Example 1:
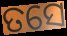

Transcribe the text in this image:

ତସେ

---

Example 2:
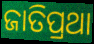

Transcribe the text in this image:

ଜାତିପ୍ରଥା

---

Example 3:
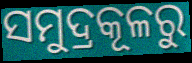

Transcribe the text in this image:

ସମୁଦ୍ରକୂଳରୁ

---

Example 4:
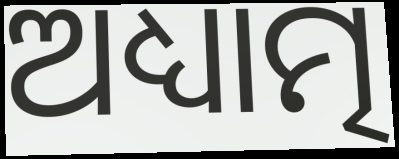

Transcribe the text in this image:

ଅଧ୍ୟାତ୍ମ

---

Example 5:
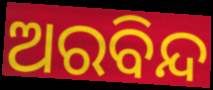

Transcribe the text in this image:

ଅରବିନ୍ଦ